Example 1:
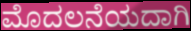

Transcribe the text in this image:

ಮೊದಲನೆಯದಾಗಿ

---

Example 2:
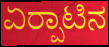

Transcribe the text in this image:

ಏರ‍್ಪಾಟಿನ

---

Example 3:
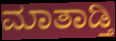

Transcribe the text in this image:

ಮಾತಾಡ್ತಿ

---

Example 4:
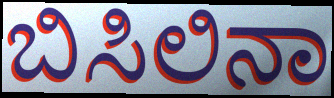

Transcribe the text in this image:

ಬಿಸಿಲಿನಾ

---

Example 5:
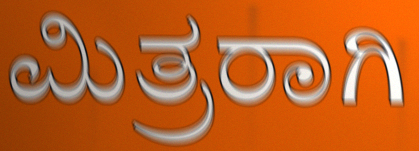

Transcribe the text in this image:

ಮಿತ್ರರಾಗಿ